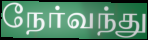
நேர்வந்து